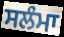
ਸਲੰਮਾ